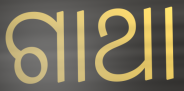
ଗାଥା